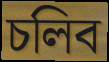
চলিব